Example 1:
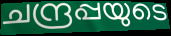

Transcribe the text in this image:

ചന്ദ്രപ്പയുടെ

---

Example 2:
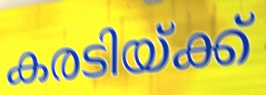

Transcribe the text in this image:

കരടിയ്ക്ക്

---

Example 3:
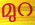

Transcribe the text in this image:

മുറ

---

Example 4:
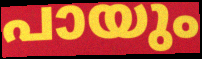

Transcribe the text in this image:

പായും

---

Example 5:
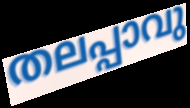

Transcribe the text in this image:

തലപ്പാവു